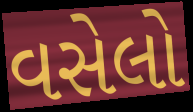
વસેલો